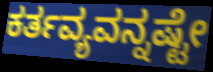
ಕರ್ತವ್ಯವನ್ನಷ್ಟೇ